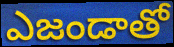
ఎజండాతో